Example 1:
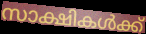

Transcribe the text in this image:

സാക്ഷികൾക്ക്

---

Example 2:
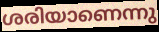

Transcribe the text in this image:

ശരിയാണെന്നു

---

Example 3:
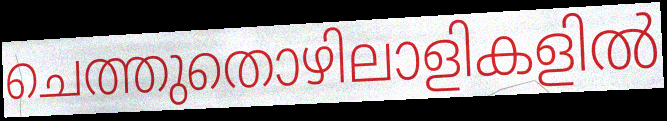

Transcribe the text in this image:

ചെത്തുതൊഴിലാളികളിൽ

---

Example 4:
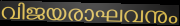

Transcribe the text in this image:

വിജയരാഘവനും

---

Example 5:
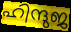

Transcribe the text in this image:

ഹിന്ദുജ